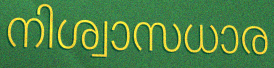
നിശ്വാസധാര